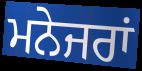
ਮਨੇਜਰਾਂ